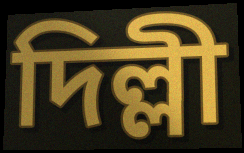
দিল্লী